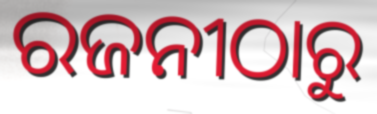
ରଜନୀଠାରୁ